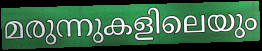
മരുന്നുകളിലെയും